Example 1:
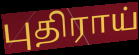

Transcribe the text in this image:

புதிராய்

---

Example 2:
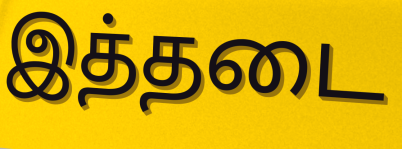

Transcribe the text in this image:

இத்தடை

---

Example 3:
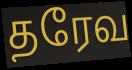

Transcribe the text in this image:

தரேவ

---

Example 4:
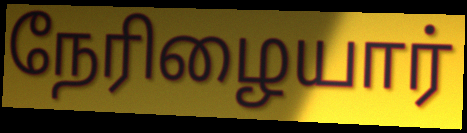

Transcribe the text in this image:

நேரிழையார்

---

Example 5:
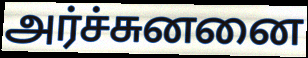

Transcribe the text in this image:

அர்ச்சுனனை